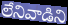
లేనివాడిని